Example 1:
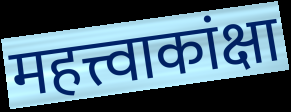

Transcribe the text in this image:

महत्त्वाकांक्षा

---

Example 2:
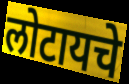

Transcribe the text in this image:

लोटायचे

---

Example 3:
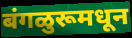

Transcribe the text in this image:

बंगळुरूमधून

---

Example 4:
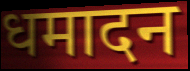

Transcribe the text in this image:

धमादन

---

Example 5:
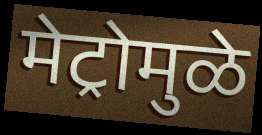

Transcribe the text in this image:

मेट्रोमुळे